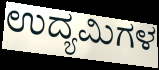
ಉದ್ಯಮಿಗಳ